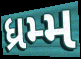
ધ્રમ્મ